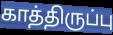
காத்திருப்பு